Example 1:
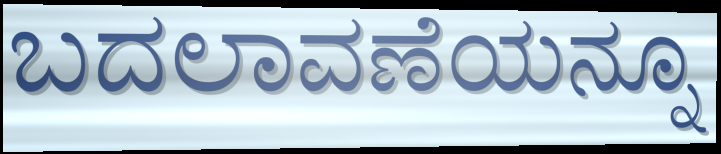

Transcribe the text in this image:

ಬದಲಾವಣೆಯನ್ನೂ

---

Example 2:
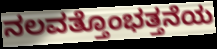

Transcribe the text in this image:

ನಲವತ್ತೊಂಭತ್ತನೆಯ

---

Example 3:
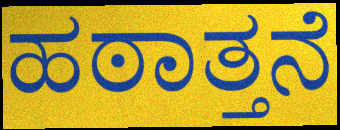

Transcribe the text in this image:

ಹಠಾತ್ತನೆ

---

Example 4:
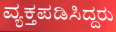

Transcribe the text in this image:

ವ್ಯಕ್ತಪಡಿಸಿದ್ದರು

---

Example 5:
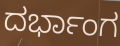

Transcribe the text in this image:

ದರ್ಭಾಂಗ